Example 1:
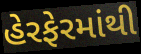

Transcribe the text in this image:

હેરફેરમાંથી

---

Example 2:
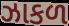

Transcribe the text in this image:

ઝાકળ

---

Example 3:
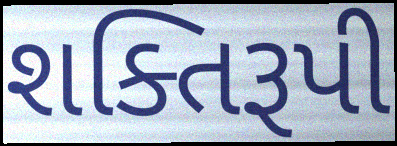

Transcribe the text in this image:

શક્તિરૂપી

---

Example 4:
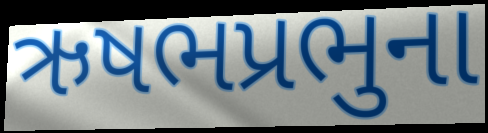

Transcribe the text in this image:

ઋષભપ્રભુના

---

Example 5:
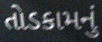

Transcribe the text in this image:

તોડકામનું